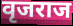
वृजराज